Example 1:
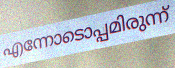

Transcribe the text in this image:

എന്നോടൊപ്പമിരുന്ന്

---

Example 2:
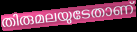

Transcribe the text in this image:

തിരുമലയുടേതാണ്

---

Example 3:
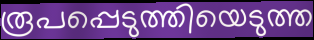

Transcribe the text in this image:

രൂപപ്പെടുത്തിയെടുത്ത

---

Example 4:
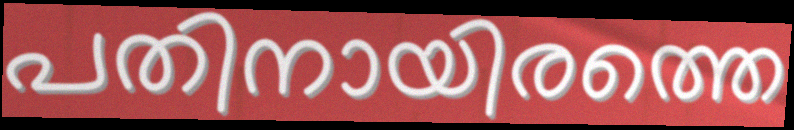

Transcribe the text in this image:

പതിനായിരത്തെ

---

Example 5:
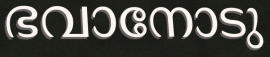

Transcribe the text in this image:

ഭവാനോടു